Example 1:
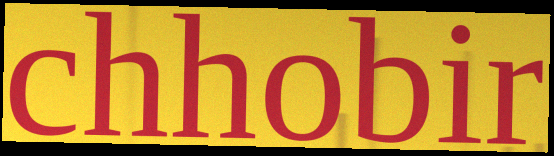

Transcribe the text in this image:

chhobir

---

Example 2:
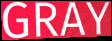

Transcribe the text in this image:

GRAY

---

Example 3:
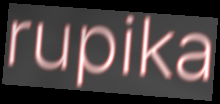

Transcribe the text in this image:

rupika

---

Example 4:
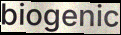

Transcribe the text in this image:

biogenic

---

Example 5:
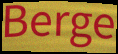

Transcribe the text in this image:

Berge